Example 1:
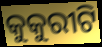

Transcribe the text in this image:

କୁକୁରୀଟି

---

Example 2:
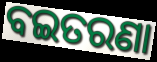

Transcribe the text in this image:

ବଇତରଣା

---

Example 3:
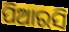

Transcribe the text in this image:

ପିଆରସି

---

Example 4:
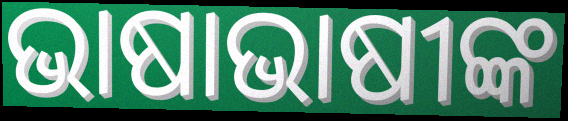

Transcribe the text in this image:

ଭାଷାଭାଷୀଙ୍କ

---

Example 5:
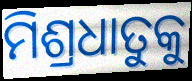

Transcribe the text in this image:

ମିଶ୍ରଧାତୁକୁ